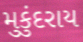
મુકુંદરાય